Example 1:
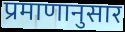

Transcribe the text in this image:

प्रमाणानुसार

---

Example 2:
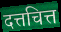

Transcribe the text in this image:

दत्तचित्त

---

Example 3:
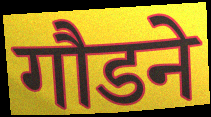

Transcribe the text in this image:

गौडने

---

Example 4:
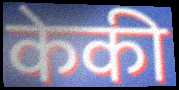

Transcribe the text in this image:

केकी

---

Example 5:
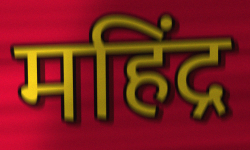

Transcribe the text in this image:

महिंद्र